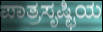
ಪಾತ್ರಸೃಷ್ಟಿಯ